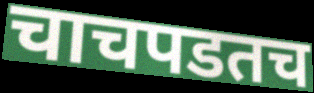
चाचपडतच